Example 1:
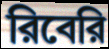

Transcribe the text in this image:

রিবেরি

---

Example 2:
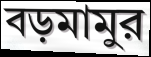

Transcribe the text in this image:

বড়মামুর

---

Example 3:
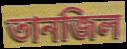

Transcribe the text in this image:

তানজিল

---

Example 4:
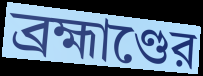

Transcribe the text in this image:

ব্রহ্মাণ্ডের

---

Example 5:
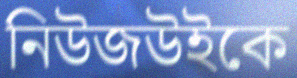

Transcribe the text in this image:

নিউজউইকে